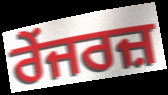
ਰੇਂਜਰਜ਼